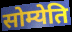
सोम्येति